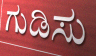
ಗುಡಿಸು